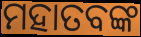
ମହାତବଙ୍କ